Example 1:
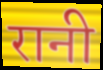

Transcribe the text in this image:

रानी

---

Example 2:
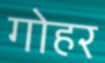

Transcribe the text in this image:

गोहर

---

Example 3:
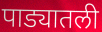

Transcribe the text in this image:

पाड्यातली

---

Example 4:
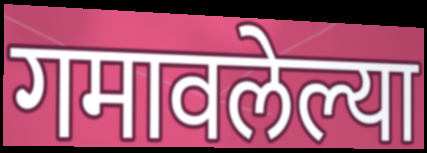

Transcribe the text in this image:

गमावलेल्या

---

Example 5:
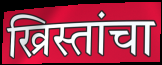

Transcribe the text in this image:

ख्रिस्तांचा